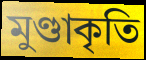
মুণ্ডাকৃতি